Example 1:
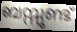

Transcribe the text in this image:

ബസ്സുണ്ട്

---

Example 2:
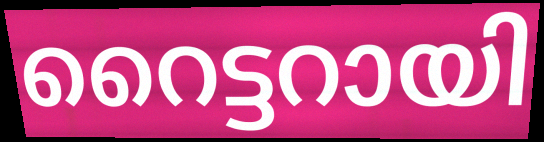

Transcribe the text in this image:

റൈട്ടറായി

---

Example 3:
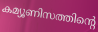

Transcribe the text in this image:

കമ്യൂണിസത്തിന്റെ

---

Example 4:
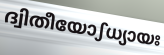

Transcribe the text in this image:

ദ്വിതീയോഽധ്യായഃ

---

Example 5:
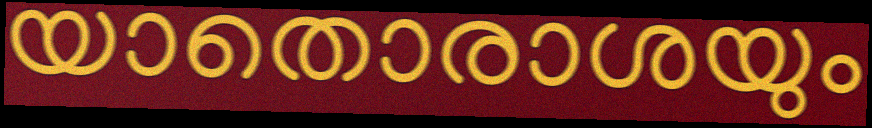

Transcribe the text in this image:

യാതൊരാശയും